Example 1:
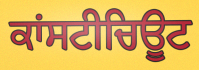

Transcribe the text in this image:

ਕਾਂਸਟੀਚਿਊਟ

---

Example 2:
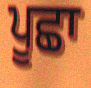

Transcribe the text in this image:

ਪੂਛਾ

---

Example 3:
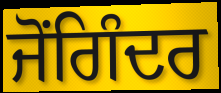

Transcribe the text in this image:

ਜੋਂਗਿੰਦਰ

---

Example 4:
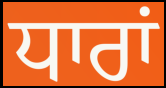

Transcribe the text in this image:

ਧਾਰਾਂ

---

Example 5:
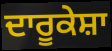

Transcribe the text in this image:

ਦਾਰੂਕੇਸ਼ਾ